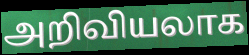
அறிவியலாக